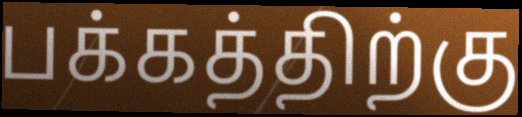
பக்கத்திற்கு